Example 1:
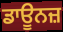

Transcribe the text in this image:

ਡਾਊਨਜ਼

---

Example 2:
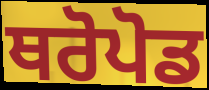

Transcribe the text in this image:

ਥਰੋਪੋਡ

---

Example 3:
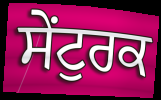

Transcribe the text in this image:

ਸੇਂਟੁਰਕ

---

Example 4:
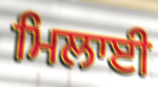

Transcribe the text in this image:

ਮਿਲਾਈ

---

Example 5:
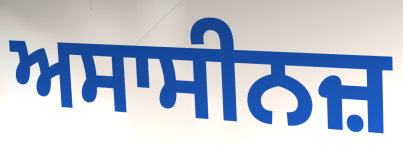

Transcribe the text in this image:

ਅਸਾਸੀਨਜ਼